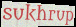
sukhrup